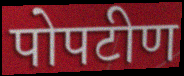
पोपटीण